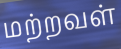
மற்றவள்